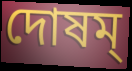
দোষম্